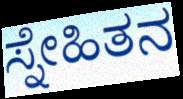
ಸ್ನೇಹಿತನ